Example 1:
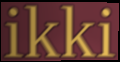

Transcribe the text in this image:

ikki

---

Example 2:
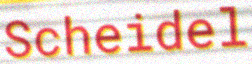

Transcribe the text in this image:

Scheidel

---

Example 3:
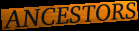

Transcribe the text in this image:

ANCESTORS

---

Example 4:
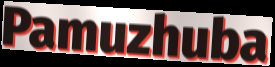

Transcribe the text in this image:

Pamuzhuba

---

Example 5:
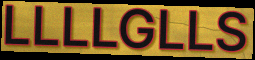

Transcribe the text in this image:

LLLLGLLS